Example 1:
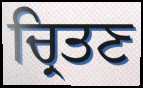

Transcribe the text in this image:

ਚ੍ਰਿਤਣ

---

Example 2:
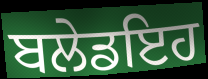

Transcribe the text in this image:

ਬਲੇਡਇਹ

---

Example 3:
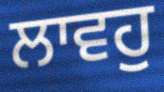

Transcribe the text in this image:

ਲਾਵਹੁ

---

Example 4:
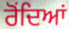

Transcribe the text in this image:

ਰੋਂਦਿਆਂ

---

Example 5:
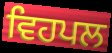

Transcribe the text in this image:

ਵਿਹਪਲ